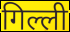
गिल्ली